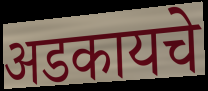
अडकायचे